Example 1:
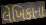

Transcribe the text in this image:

લેખિકાના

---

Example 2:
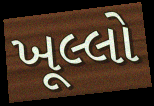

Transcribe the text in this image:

ખૂલ્લો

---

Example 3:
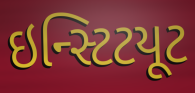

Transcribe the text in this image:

ઇન્સ્ટિટયૂટ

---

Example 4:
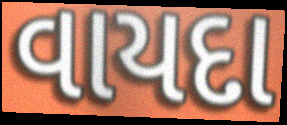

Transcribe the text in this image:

વાયદા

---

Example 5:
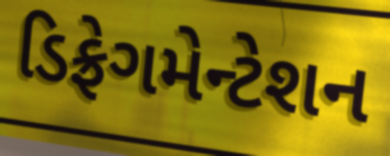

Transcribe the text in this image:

ડિફ્રેગમેન્ટેશન